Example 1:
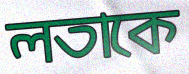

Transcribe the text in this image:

লতাকে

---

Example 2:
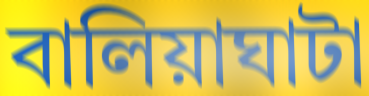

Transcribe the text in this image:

বালিয়াঘাটা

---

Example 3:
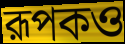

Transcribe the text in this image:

রূপকও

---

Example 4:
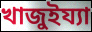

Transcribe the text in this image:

খাজুইয্যা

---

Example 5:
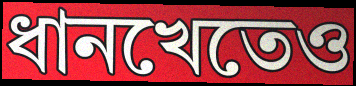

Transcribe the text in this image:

ধানখেতেও